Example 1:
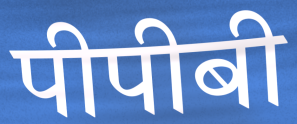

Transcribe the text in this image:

पीपीबी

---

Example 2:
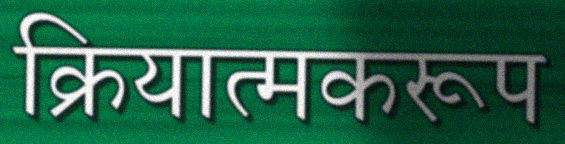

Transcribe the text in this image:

क्रियात्मकरूप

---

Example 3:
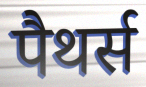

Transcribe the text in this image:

पैथर्स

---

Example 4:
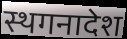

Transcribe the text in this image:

स्थगनादेश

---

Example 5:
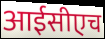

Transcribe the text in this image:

आईसीएच